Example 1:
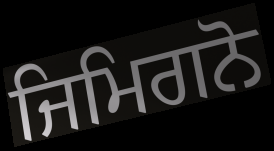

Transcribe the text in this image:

ਜਿਮਿਗਨੋ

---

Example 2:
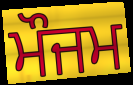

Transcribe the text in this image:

ਮੌਜਮ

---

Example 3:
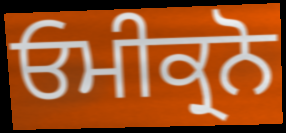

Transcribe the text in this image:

ਓਮੀਕ੍ਰਨੋ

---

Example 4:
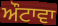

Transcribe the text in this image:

ਔਟਾਵਾ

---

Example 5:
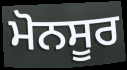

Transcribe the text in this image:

ਮੋਨਸੂਰ